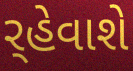
ર્‌હેવાશે